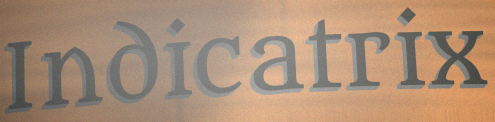
Indicatrix